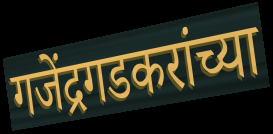
गजेंद्रगडकरांच्या